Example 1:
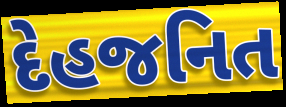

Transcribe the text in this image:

દેહજનિત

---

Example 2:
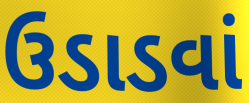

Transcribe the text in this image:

ઉડાડવાં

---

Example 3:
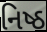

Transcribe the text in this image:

નિષ્ઠ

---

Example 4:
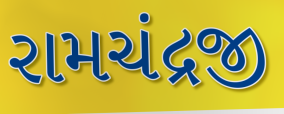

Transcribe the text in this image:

રામચંદ્રજી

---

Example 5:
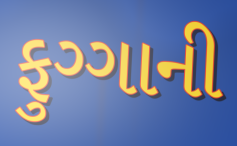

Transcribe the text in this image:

ફુગ્ગાની